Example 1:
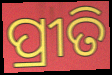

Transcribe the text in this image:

ପ୍ରୀତି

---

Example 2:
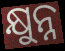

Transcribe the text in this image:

କ୍ଷୁନ୍ନ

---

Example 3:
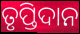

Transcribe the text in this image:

ତୃପ୍ତିଦାନ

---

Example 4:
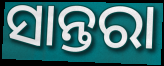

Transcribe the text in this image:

ସାନ୍ତରା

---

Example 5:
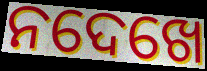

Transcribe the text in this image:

ନଦେଖେ